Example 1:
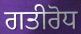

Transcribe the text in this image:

ਗਤੀਰੋਧ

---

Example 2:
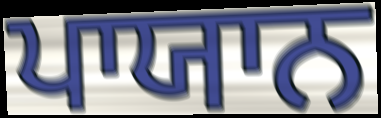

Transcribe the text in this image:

ਪਾਯਾਨ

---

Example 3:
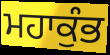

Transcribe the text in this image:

ਮਹਾਕੁੰਭ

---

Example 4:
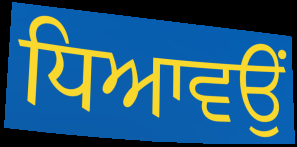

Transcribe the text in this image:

ਧਿਆਵਉਂ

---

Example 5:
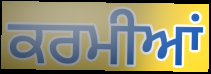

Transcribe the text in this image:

ਕਰਮੀਆਂ